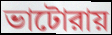
ভাটোরায়